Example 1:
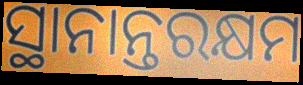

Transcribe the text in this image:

ସ୍ଥାନାନ୍ତରକ୍ଷମ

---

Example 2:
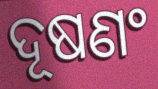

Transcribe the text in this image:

ଦୂଷଣଂ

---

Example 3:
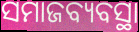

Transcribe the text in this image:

ସମାଜବ୍ୟବସ୍ଥା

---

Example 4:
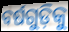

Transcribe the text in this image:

ବର୍ଷଗୁଡ଼ିକୁ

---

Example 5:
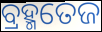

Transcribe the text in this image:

ବ୍ରହ୍ମତେଜ